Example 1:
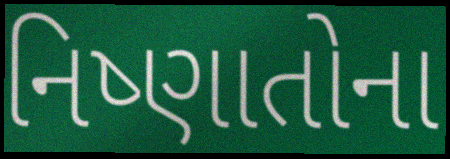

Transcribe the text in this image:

નિષ્ણાતોના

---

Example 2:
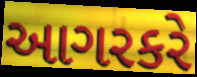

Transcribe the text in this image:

આગરકરે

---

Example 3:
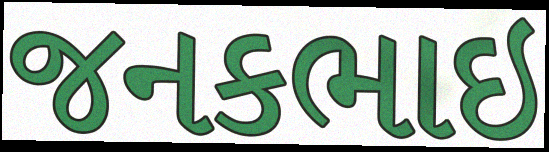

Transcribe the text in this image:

જનકભાઇ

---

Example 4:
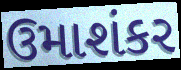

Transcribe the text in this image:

ઉમાશંકર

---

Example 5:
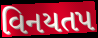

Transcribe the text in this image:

વિનયતપ